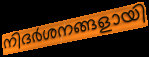
നിദർശനങ്ങളായി